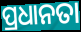
ପ୍ରଧାନତା